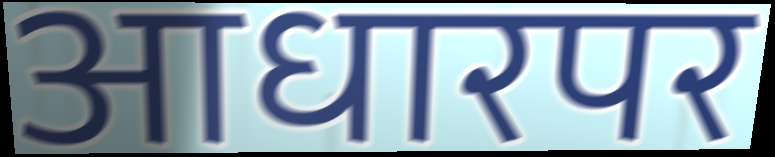
आधारपर